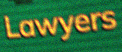
Lawyers